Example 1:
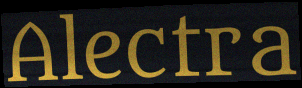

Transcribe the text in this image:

Alectra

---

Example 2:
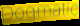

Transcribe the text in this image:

Dogmatic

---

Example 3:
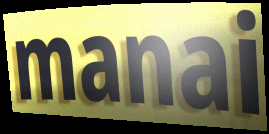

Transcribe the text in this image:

manai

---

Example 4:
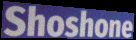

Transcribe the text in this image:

Shoshone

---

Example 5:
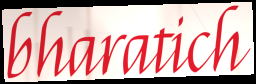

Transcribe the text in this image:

bharatich